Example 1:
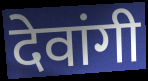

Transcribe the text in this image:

देवांगी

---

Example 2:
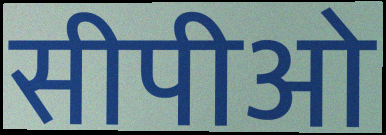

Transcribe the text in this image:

सीपीओ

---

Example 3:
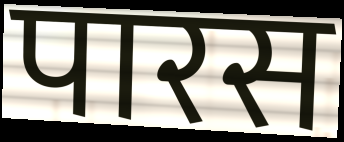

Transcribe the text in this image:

पारस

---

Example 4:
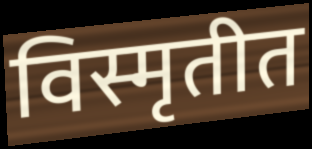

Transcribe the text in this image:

विस्मृतीत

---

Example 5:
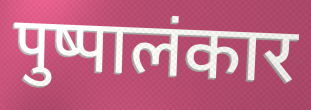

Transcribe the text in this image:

पुष्पालंकार